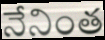
నేనింత